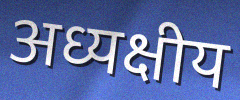
अध्यक्षीय